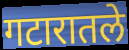
गटारातले